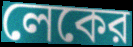
লেকের